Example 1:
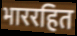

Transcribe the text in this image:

भाररहित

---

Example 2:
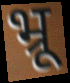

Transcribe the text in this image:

भ्रू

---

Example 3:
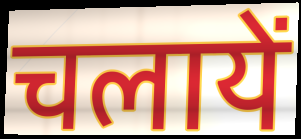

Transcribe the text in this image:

चलायें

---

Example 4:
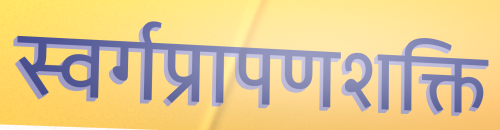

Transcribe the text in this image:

स्वर्गप्रापणशक्ति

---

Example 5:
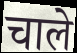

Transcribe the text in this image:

चाले